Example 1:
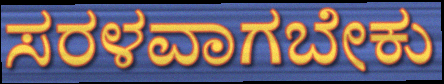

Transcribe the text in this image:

ಸರಳವಾಗಬೇಕು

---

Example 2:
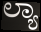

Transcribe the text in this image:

ಲ್ಯಾ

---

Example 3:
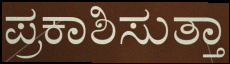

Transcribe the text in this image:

ಪ್ರಕಾಶಿಸುತ್ತಾ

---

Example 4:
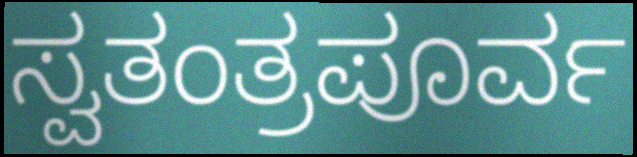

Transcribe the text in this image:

ಸ್ವತಂತ್ರಪೂರ್ವ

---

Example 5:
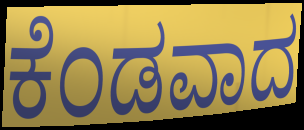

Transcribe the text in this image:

ಕೆಂಡವಾದ